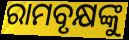
ରାମବୃକ୍ଷଙ୍କୁ